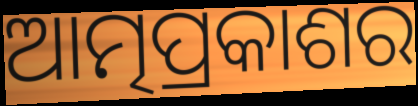
ଆତ୍ମପ୍ରକାଶର